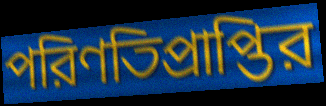
পরিণতিপ্রাপ্তির